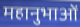
महानुभाओं